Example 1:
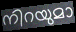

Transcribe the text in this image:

നിറയുമാ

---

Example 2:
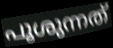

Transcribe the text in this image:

പൂശുന്നത്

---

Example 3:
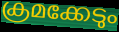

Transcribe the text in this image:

ക്രമക്കേടും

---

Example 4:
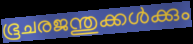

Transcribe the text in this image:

ഭൂചരജന്തുക്കൾക്കും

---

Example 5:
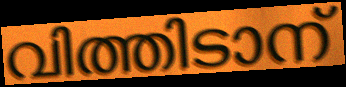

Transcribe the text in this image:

വിത്തിടാന്